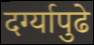
दर्ग्यापुढे